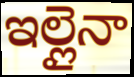
ఇల్లైనా